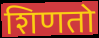
शिणतो